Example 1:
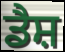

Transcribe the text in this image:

ਡੈਸ਼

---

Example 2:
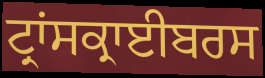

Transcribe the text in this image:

ਟ੍ਰਾਂਸਕ੍ਰਾਈਬਰਸ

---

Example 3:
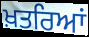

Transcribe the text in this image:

ਖ਼ਤਰਿਆਂ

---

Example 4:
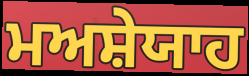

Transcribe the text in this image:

ਮਅਸ਼ੇਯਾਹ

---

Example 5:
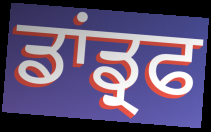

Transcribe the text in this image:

ਡਾਂਡ੍ਰਫ